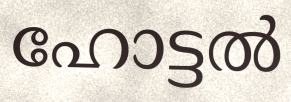
ഹോട്ടൽ